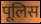
पूलिस